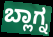
ಬ್ಲಾಗ್ನ